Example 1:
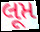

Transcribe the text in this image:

લૂપ્ત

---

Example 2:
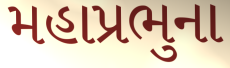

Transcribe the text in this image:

મહાપ્રભુના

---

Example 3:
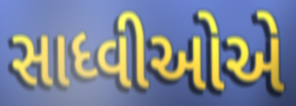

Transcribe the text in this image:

સાધ્વીઓએ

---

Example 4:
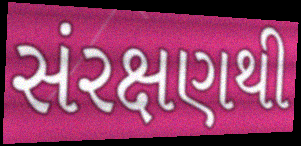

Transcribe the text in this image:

સંરક્ષણથી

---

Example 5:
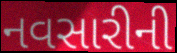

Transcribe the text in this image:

નવસારીની